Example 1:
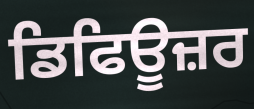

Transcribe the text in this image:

ਡਿਫਿਊਜ਼ਰ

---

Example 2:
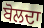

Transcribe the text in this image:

ਬੋਲਦਾ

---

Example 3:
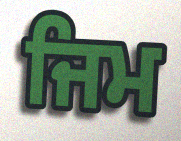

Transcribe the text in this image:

ਜਿਮ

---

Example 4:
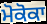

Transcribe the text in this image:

ਮੋਕੋਕਾ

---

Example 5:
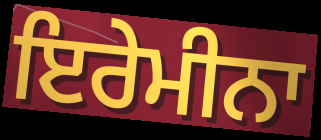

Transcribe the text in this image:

ਇਰੇਮੀਨਾ